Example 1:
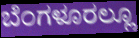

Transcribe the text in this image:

ಬೆಂಗಳೂರಲ್ಲೂ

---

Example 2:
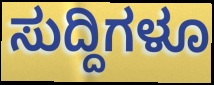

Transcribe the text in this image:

ಸುದ್ದಿಗಳೂ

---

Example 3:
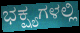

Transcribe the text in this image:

ಭಕ್ಷ್ಯಗಳಲ್ಲಿ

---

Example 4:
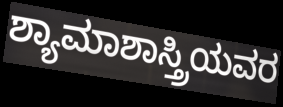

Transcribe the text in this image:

ಶ್ಯಾಮಾಶಾಸ್ತ್ರಿಯವರ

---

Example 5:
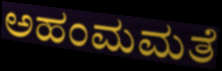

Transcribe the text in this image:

ಅಹಂಮಮತೆ